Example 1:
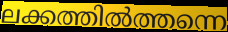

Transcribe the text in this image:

ലക്കത്തിൽത്തന്നെ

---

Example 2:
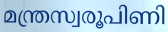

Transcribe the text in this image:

മന്ത്രസ്വരൂപിണി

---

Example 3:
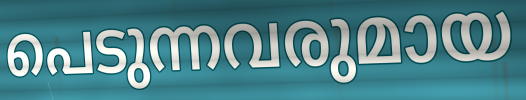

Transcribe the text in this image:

പെടുന്നവരുമായ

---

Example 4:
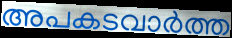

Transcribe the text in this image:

അപകടവാർത്ത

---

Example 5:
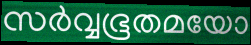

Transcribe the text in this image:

സർവ്വഭൂതമയോ